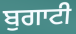
ਬੁਗਾਟੀ